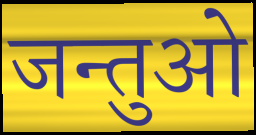
जन्तुओ